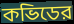
কভিডের